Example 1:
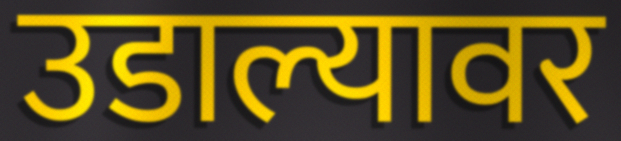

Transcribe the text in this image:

उडाल्यावर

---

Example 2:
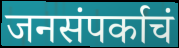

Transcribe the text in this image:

जनसंपर्काचं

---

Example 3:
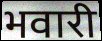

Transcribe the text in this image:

भवारी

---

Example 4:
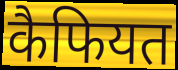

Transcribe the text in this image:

कैफियत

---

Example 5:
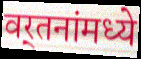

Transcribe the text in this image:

वर्तनांमध्ये